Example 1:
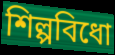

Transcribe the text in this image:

শিল্পবিধো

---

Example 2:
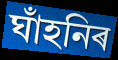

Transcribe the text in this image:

ঘাঁহনিৰ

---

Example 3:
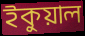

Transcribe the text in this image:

ইকুয়াল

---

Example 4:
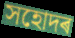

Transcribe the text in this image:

সহোদৰ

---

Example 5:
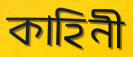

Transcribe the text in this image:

কাহিনী